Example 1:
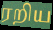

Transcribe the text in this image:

ரறிய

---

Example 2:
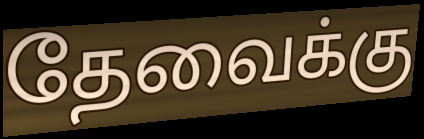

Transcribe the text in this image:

தேவைக்கு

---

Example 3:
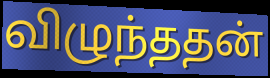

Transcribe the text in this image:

விழுந்ததன்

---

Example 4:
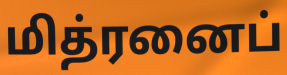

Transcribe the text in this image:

மித்ரனைப்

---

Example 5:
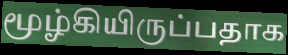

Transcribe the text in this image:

மூழ்கியிருப்பதாக